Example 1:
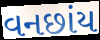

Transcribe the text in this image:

વનછાંય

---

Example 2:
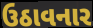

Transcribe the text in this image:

ઉઠાવનાર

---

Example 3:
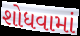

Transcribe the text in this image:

શોધવામાં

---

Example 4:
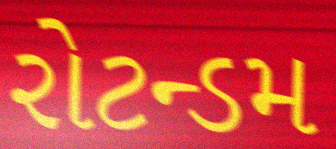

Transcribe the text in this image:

રોટન્ડમ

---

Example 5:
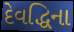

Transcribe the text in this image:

દેવદ્ધિના